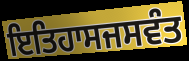
ਇਤਿਹਾਸਜਸਵੰਤ